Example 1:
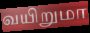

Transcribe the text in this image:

வயிறுமா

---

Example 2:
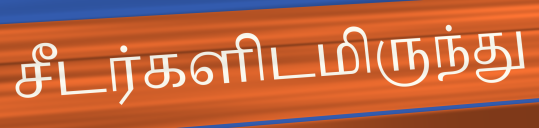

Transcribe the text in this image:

சீடர்களிடமிருந்து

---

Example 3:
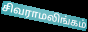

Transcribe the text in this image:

சிவராமலிங்கம்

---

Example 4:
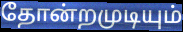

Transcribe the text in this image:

தோன்றமுடியும்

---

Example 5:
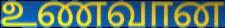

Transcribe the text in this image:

உணவான